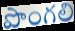
పొంగలి